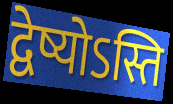
द्वेष्योऽस्ति